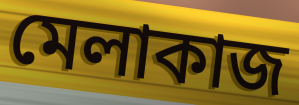
মেলাকাজ